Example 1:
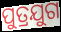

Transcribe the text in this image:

ପୁତ୍ରଯୁଗ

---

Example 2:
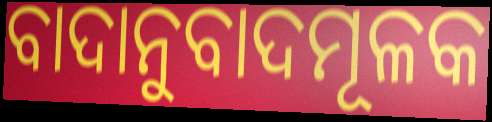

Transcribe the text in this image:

ବାଦାନୁବାଦମୂଳକ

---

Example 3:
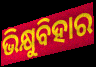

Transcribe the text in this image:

ଭିକ୍ଷୁବିହାର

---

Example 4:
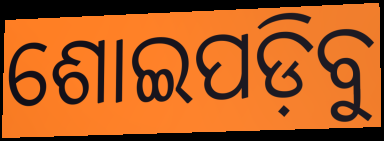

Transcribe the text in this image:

ଶୋଇପଡ଼ିବୁ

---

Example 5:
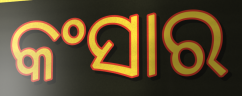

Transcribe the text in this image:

କଂସାର